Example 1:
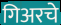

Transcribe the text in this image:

गिअरचे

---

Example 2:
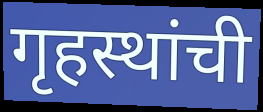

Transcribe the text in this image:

गृहस्थांची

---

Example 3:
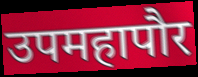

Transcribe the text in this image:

उपमहापौर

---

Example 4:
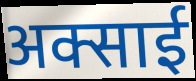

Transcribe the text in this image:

अक्साई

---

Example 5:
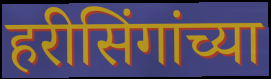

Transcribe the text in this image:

हरीसिंगांच्या